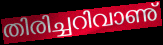
തിരിച്ചറിവാണു്